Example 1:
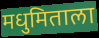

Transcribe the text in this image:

मधुमिताला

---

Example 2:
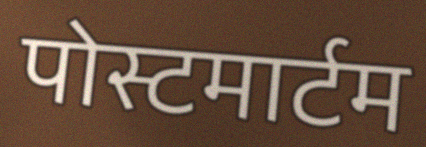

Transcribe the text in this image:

पोस्टमार्टम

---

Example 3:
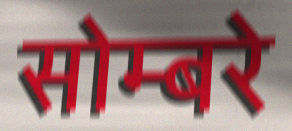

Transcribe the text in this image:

सोम्बरे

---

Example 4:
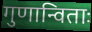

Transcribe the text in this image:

गुणान्विताः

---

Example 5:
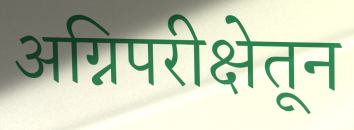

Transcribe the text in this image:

अग्निपरीक्षेतून